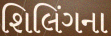
શિલિંગના